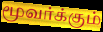
மூவர்க்கும்